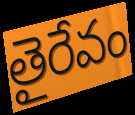
తైరేవం